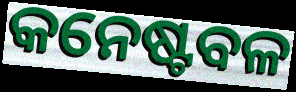
କନେଷ୍ଟବଳ